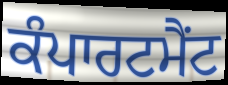
ਕੰਪਾਰਟਮੈਂਟ